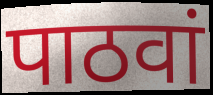
पाठवां